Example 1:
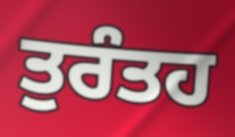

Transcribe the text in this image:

ਤੁਰੰਤਹ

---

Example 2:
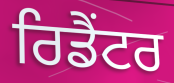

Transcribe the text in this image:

ਰਿਡੈਂਟਰ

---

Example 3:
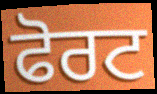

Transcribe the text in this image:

ਫੋਰਟ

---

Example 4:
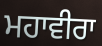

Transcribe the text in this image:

ਮਹਾਵੀਰਾ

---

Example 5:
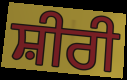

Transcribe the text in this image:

ਸ਼ੀਰੀ